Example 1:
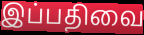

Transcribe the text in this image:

இப்பதிவை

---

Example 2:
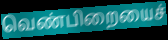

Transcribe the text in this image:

வெண்பிறையைச்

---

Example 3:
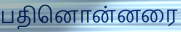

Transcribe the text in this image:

பதினொன்னரை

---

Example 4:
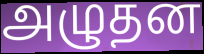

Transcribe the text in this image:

அழுதன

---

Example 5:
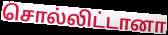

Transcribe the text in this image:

சொல்லிட்டானா